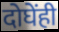
दोघेंही